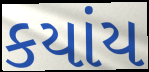
કયાંય